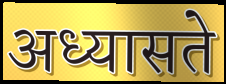
अध्यासते